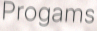
Progams